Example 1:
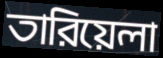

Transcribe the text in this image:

তারিয়েলা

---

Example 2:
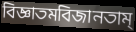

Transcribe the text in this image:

বিজ্ঞাতমবিজানতাম্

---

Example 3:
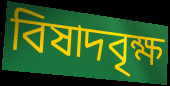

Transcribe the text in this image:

বিষাদবৃক্ষ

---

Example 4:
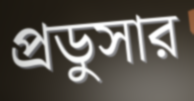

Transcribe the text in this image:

প্রডুসার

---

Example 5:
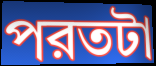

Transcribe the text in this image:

পরতটা